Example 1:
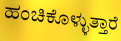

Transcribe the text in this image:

ಹಂಚಿಕೊಳ್ಳುತ್ತಾರೆ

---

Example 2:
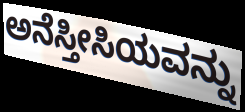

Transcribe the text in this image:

ಅನೆಸ್ತೀಸಿಯವನ್ನು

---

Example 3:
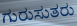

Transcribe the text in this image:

ಗುರುಸುತರು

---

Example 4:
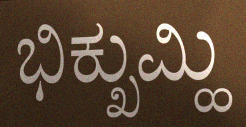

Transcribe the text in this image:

ಭಿಕ್ಖುಮ್ಹಿ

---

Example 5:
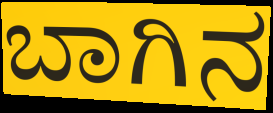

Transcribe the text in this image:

ಬಾಗಿನ